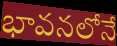
భావనలోనే